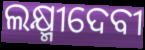
ଲକ୍ଷ୍ମୀଦେବୀ